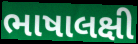
ભાષાલક્ષી